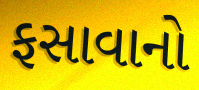
ફસાવાનો